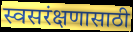
स्वसरंक्षणासाठी